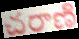
చరాణి